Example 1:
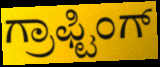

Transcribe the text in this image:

ಗ್ರಾಫ್ಟಿಂಗ್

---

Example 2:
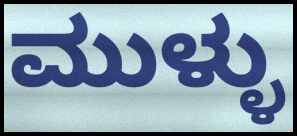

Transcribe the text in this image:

ಮುಳ್ಳು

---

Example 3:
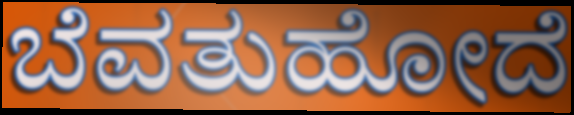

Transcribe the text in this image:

ಬೆವತುಹೋದೆ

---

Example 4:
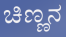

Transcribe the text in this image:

ಚಿಣ್ಣನ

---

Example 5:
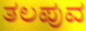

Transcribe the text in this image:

ತಲಪುವ